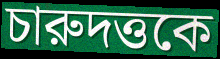
চারুদত্তকে